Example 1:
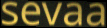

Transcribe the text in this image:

sevaa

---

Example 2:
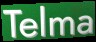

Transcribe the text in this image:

Telma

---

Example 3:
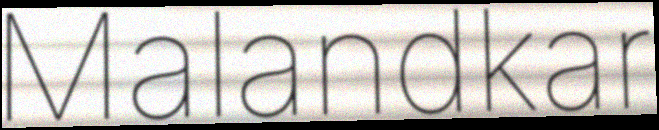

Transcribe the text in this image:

Malandkar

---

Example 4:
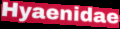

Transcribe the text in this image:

Hyaenidae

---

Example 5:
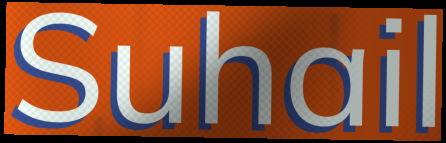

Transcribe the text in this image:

Suhail